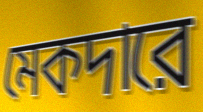
মেকদারে